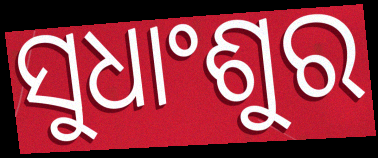
ସୁଧାଂଶୁର